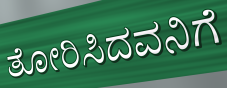
ತೋರಿಸಿದವನಿಗೆ